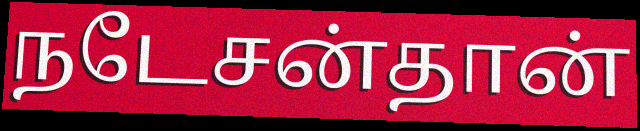
நடேசன்தான்